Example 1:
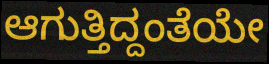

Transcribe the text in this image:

ಆಗುತ್ತಿದ್ದಂತೆಯೇ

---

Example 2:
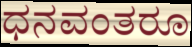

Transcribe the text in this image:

ಧನವಂತರೂ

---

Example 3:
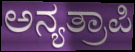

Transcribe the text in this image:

ಅನ್ಯತ್ರಾಪಿ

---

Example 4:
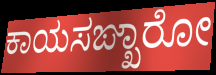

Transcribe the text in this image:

ಕಾಯಸಙ್ಖಾರೋ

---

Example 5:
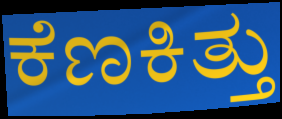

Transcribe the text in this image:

ಕೆಣಕಿತ್ತು